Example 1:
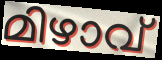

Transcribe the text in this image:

മിഴാവ്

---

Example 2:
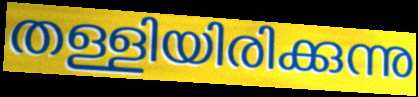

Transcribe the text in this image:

തള്ളിയിരിക്കുന്നു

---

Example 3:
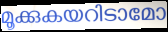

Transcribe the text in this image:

മൂക്കുകയറിടാമോ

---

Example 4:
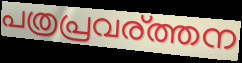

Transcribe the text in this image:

പത്രപ്രവര്ത്തന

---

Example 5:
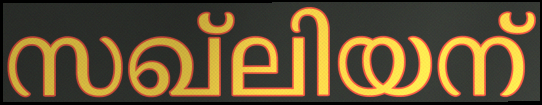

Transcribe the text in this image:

സഖ്ലിയന്